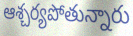
ఆశ్చర్యపోతున్నారు